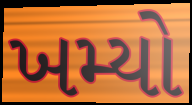
ખમ્યો